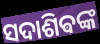
ସଦାଶିଵଙ୍କ